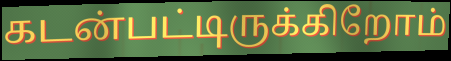
கடன்பட்டிருக்கிறோம்